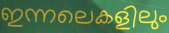
ഇന്നലെകളിലും